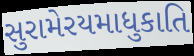
સુરામેરયમાધુકાતિ